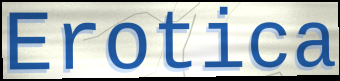
Erotica